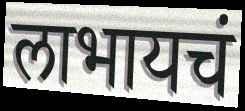
लाभायचं